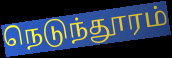
நெடுந்தூரம்